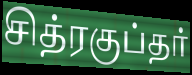
சித்ரகுப்தர்